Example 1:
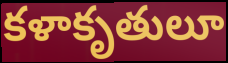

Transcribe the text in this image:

కళాకృతులూ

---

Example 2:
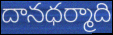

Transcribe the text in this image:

దానధర్మాది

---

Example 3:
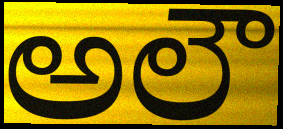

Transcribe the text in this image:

అలౌ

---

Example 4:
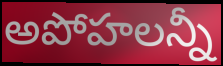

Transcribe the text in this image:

అపోహలన్నీ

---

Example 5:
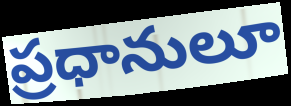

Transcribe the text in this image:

ప్రధానులూ